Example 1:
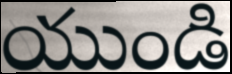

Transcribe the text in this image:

యుండి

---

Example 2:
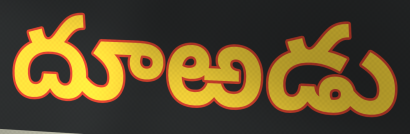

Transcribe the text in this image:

దూఱడు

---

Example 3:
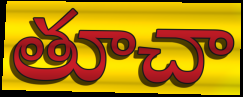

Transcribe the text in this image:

తూచా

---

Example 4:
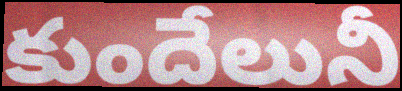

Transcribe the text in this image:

కుందేలునీ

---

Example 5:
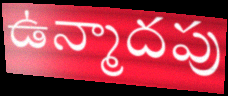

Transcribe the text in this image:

ఉన్మాదపు